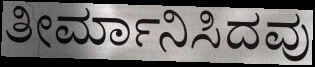
ತೀರ್ಮಾನಿಸಿದವು